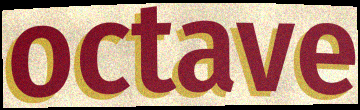
octave